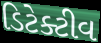
ડિટેક્ટીવ